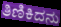
ತಿಣಿಕಿದನು